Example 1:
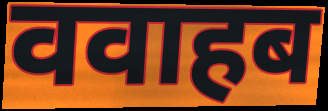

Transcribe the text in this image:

ववाहब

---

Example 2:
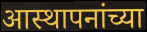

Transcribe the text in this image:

आस्थापनांच्या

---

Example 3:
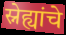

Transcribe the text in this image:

स्नेह्यांचे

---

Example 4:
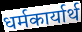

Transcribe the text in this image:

धर्मकार्यार्थ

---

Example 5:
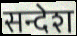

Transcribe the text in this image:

सन्देश